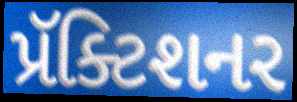
પ્રૅક્ટિશનર